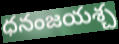
ధనంజయశ్చ